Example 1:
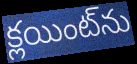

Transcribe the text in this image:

క్లయింట్‌ను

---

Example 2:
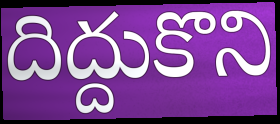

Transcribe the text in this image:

దిద్దుకొని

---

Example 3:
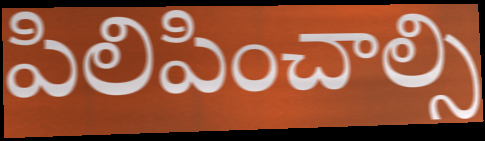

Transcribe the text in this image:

పిలిపించాల్సి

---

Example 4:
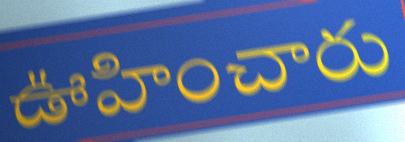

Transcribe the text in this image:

ఊహించారు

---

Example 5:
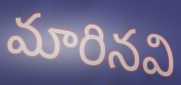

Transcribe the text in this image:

మారినవి